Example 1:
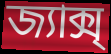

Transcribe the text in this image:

জ্যাক্স্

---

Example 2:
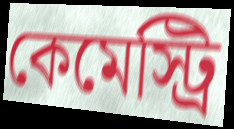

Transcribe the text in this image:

কেমেস্ট্রি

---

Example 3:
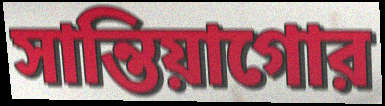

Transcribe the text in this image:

সান্তিয়াগোর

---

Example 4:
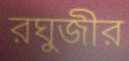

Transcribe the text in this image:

রঘুজীর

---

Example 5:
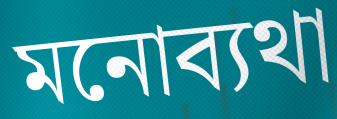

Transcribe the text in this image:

মনোব্যথা